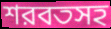
শরবতসহ